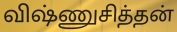
விஷ்ணுசித்தன்